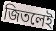
জিতলেই